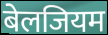
बेलजियम